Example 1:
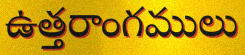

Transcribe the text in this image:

ఉత్తరాంగములు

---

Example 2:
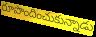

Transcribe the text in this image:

రూపొందించుకున్నాడు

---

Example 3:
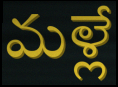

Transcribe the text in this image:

మళ్లే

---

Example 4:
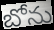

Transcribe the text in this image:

బోను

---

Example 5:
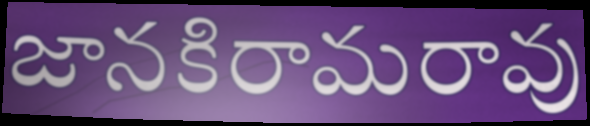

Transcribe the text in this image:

జానకిరామరావు